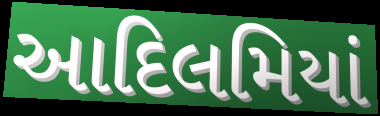
આદિલમિયાં